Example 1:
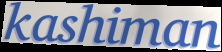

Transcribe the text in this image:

kashiman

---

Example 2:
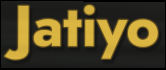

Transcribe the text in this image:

Jatiyo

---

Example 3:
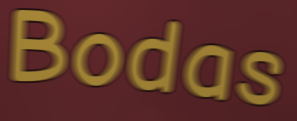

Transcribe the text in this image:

Bodas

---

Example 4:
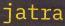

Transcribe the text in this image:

jatra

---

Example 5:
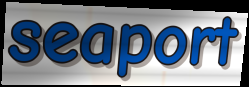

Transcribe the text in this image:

seaport